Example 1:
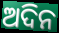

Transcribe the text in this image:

ଅଦିନ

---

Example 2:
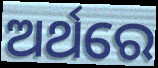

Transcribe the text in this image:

ଅର୍ଥରେ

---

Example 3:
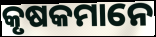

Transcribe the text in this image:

କୃଷକମାନେ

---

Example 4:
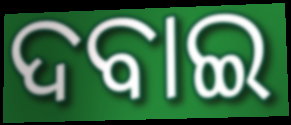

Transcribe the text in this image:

ଦବାଇ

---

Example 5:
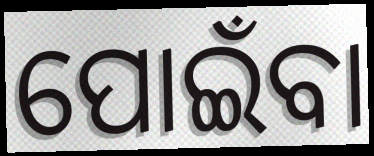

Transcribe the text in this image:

ପୋଇଁବା